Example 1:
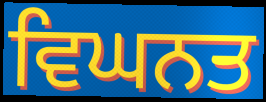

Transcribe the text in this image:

ਵਿਘਨਤ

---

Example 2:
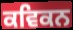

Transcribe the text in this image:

ਕਵਿਕਨ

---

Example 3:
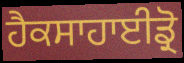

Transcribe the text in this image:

ਹੈਕਸਾਹਾਈਡ੍ਰੋ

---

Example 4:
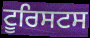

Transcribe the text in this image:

ਟੂਰਿਸਟਸ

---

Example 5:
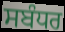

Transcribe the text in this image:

ਸਬੰਧਰ